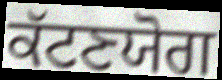
ਕੱਟਣਯੋਗ